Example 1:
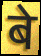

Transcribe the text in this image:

बे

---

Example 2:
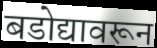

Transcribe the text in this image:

बडोद्यावरून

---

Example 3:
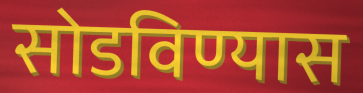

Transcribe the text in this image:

सोडविण्यास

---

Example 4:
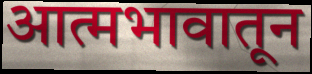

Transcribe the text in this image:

आत्मभावातून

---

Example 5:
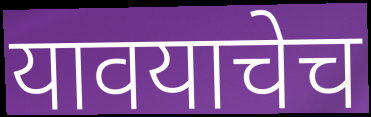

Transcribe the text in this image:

यावयाचेच